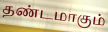
தண்டமாகும்